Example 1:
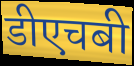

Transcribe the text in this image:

डीएचबी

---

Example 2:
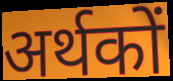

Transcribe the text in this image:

अर्थकों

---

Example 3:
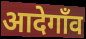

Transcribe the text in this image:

आदेगाँव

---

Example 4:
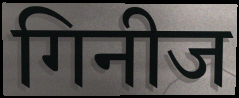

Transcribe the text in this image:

गिनीज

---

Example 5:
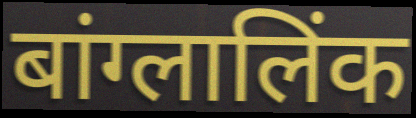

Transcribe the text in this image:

बांग्लालिंक